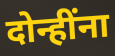
दोन्हींना